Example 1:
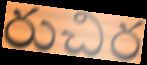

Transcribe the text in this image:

రుచిర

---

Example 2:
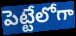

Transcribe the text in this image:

పెట్టేలోగా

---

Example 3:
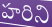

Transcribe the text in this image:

హరిని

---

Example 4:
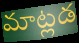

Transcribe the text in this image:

మాట్లడ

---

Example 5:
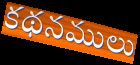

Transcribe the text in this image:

కథనములు